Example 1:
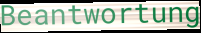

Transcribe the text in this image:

Beantwortung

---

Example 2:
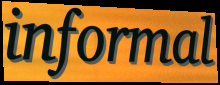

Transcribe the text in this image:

informal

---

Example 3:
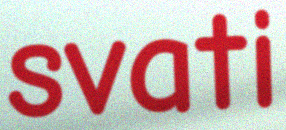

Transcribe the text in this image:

svati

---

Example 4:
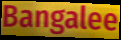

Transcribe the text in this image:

Bangalee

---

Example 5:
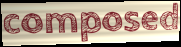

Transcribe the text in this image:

composed